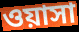
ওয়াসা